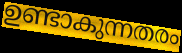
ഉണ്ടാകുന്നതരം